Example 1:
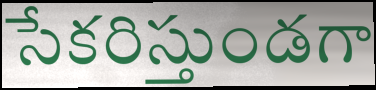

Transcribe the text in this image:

సేకరిస్తుండగా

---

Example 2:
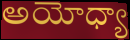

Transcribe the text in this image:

అయోధ్యా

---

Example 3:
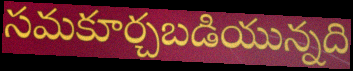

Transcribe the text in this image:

సమకూర్చబడియున్నది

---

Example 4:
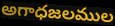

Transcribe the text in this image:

అగాధజలముల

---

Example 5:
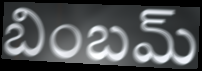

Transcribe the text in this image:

బింబమ్